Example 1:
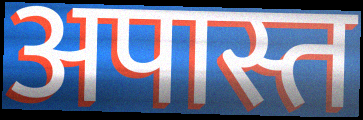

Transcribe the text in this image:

अपास्त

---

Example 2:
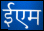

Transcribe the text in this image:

ईएम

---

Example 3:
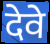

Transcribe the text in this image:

देवे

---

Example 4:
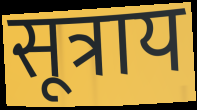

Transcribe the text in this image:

सूत्राय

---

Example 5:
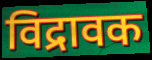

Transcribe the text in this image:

विद्रावक